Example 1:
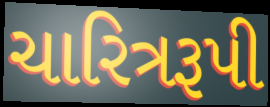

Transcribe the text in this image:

ચારિત્રરૂપી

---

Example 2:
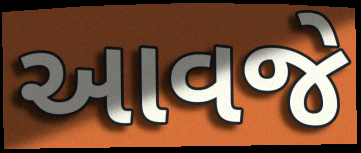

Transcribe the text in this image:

આવજે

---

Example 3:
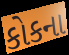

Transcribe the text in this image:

કોકના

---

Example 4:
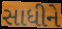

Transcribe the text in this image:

સાધીને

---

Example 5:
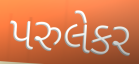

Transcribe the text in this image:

પરુલેકર